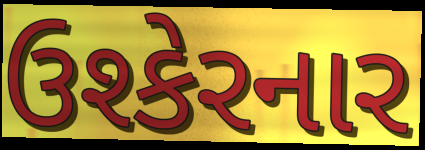
ઉશ્કેરનાર